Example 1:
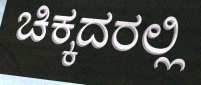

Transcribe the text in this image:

ಚಿಕ್ಕದರಲ್ಲಿ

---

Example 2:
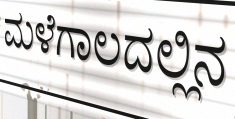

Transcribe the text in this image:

ಮಳೆಗಾಲದಲ್ಲಿನ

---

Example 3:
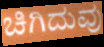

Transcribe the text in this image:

ಚಿಗಿದುವು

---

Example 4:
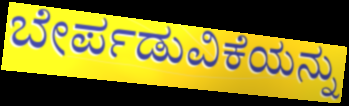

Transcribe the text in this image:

ಬೇರ್ಪಡುವಿಕೆಯನ್ನು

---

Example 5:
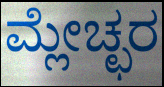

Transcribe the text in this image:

ಮ್ಲೇಚ್ಛರ